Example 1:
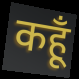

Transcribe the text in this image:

कहूँ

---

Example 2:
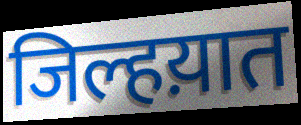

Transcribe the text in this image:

जिल्हय़ात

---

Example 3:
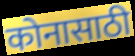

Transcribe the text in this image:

कोनासाठी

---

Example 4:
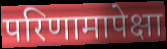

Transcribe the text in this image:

परिणामापेक्षा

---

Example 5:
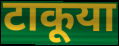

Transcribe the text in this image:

टाकूया